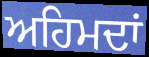
ਅਹਿਮਦਾਂ